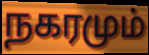
நகரமும்